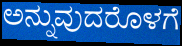
ಅನ್ನುವುದರೊಳಗೆ